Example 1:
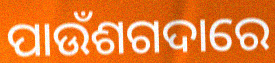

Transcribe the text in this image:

ପାଉଁଶଗଦାରେ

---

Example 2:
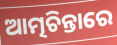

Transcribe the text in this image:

ଆତ୍ମଚିନ୍ତାରେ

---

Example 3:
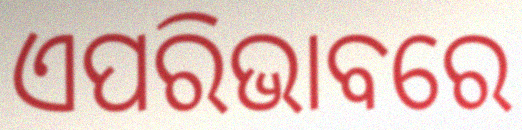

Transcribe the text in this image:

ଏପରିଭାବରେ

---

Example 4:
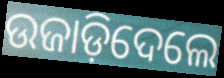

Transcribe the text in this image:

ଉଜାଡ଼ିଦେଲେ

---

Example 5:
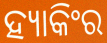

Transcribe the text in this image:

ହ୍ୟାକିଂର